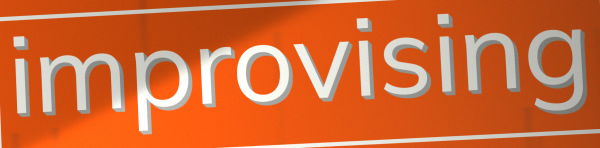
improvising